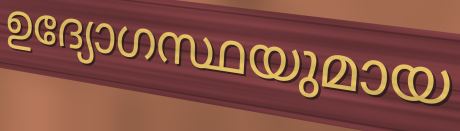
ഉദ്യോഗസ്ഥയുമായ